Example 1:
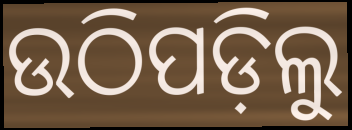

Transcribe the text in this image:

ଉଠିପଡ଼ିଲୁ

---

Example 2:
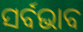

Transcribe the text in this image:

ସର୍ବଭାବ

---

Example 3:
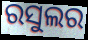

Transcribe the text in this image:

ରସୁଲର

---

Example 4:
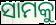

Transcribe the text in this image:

ସାମକୁ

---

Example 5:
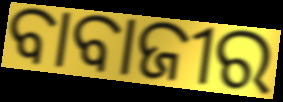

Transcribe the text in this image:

ବାବାଜୀର